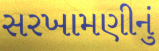
સરખામણીનું